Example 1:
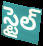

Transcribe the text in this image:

స్టైల్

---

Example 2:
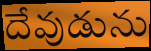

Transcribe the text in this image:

దేవుడును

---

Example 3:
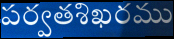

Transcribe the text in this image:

పర్వతశిఖరము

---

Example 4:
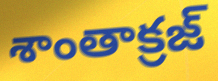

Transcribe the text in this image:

శాంతాక్రజ్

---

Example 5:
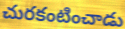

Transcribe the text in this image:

చురకంటించాడు